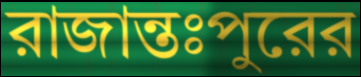
রাজান্তঃপুরের